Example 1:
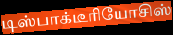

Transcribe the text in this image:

டிஸ்பாக்டீரியோசிஸ்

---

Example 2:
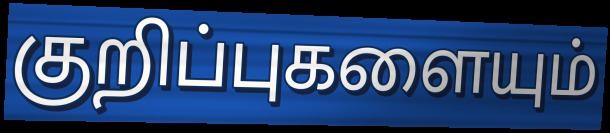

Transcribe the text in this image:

குறிப்புகளையும்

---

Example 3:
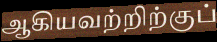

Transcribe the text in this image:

ஆகியவற்றிற்குப்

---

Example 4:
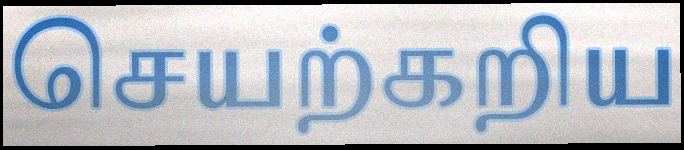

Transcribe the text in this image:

செயற்கறிய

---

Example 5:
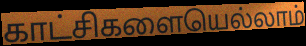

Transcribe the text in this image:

காட்சிகளையெல்லாம்